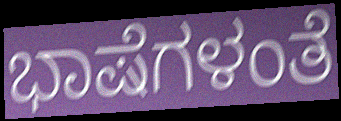
ಭಾಷೆಗಳಂತೆ